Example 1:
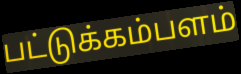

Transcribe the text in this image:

பட்டுக்கம்பளம்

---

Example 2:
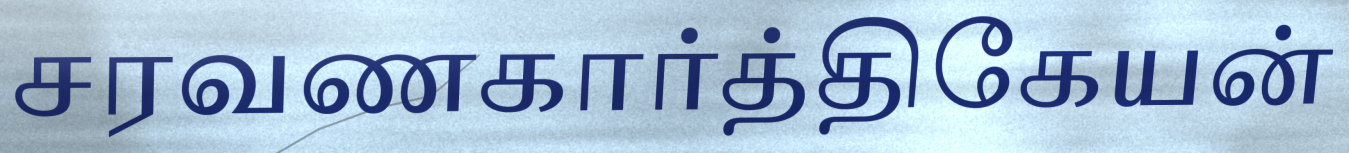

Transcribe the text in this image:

சரவணகார்த்திகேயன்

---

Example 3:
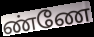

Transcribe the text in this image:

ண்ணே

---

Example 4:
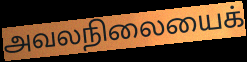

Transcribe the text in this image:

அவலநிலையைக்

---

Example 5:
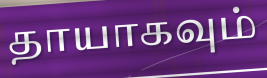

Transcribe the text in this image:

தாயாகவும்